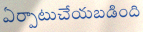
ఏర్పాటుచేయబడింది